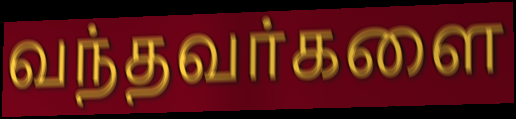
வந்தவர்களை